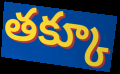
తక్కూ